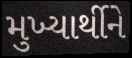
મુખ્યાર્થીને